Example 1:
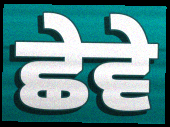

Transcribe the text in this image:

ਛੇਵੇ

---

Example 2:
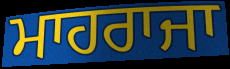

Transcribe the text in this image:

ਮਾਹਰਾਜਾ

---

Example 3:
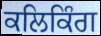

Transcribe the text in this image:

ਕਲਿਕਿੰਗ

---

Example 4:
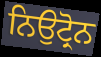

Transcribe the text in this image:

ਨਿਉਟ੍ਰੋਨ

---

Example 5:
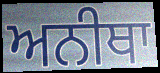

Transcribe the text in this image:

ਅਨੀਥਾ